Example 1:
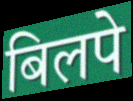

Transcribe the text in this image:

बिलपे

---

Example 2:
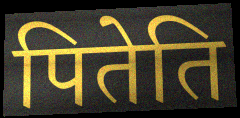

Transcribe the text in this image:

पितेति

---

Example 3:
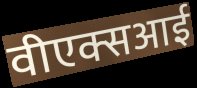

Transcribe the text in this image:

वीएक्सआई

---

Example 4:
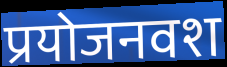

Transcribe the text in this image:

प्रयोजनवश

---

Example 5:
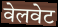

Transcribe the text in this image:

वेलवेट